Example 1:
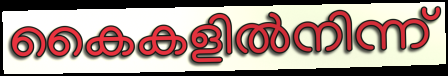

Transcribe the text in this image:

കൈകളിൽനിന്ന്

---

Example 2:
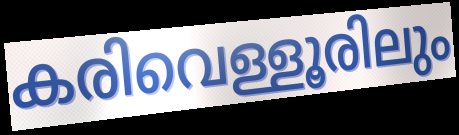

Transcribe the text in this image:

കരിവെള്ളൂരിലും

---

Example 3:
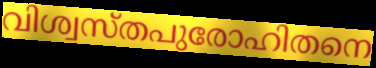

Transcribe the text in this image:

വിശ്വസ്തപുരോഹിതനെ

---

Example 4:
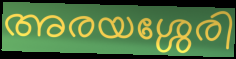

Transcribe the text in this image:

അരയശ്ശേരി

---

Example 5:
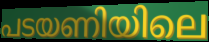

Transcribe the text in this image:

പടയണിയിലെ